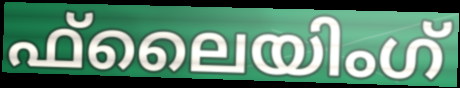
ഫ്‌ലൈയിംഗ്